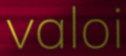
valoi